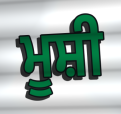
ਮੂਸ਼ੀ